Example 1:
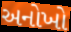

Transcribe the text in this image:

અનોખો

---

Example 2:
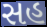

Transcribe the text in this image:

સહ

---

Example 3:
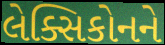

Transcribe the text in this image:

લેક્સિકોનને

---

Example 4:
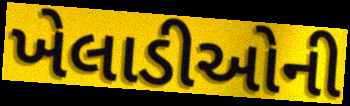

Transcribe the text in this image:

ખેલાડીઓની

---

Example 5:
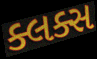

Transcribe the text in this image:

ક્લક્સ